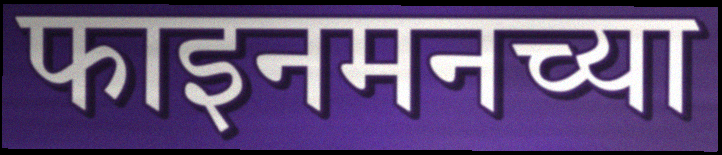
फाइनमनच्या